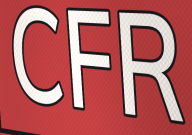
CFR